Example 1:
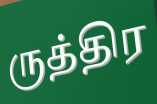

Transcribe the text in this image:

ருத்திர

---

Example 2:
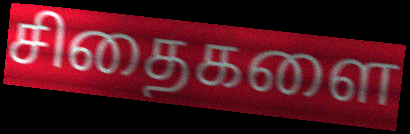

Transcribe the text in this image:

சிதைகளை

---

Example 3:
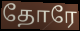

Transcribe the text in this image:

தோரே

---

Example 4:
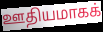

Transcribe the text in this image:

ஊதியமாகக்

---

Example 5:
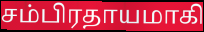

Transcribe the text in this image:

சம்பிரதாயமாகி